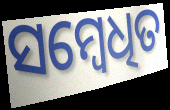
ସମ୍ବେଧିତ